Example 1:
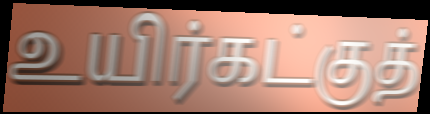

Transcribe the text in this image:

உயிர்கட்குத்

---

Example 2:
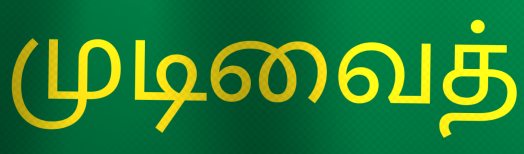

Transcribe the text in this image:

முடிவைத்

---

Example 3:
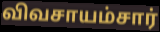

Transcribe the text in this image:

விவசாயம்சார்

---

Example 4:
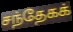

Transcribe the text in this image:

சந்தேகக்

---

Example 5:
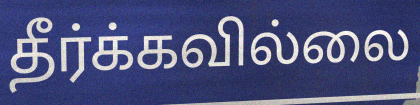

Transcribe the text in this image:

தீர்க்கவில்லை